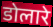
डोलारे